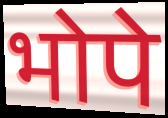
भोपे